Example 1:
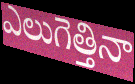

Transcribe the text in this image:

ఎలుగెత్తినా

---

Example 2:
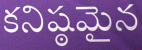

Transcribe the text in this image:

కనిష్ఠమైన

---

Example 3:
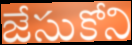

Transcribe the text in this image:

జేసుకోని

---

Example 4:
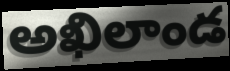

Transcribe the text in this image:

అఖిలాండ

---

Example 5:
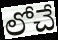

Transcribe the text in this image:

లోచే